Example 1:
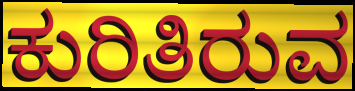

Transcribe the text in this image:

ಕುರಿತಿರುವ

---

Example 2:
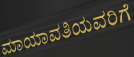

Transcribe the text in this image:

ಮಾಯಾವತಿಯವರಿಗೆ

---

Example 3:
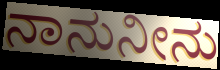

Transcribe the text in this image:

ನಾನುನೀನು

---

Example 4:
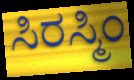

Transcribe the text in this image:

ಸಿರಸ್ಮಿಂ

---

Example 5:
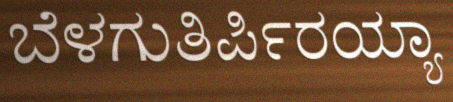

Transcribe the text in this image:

ಬೆಳಗುತಿರ್ಪಿರಯ್ಯಾ